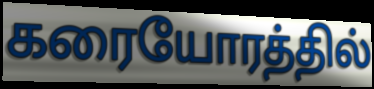
கரையோரத்தில்